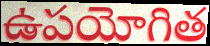
ఉపయోగిత